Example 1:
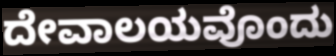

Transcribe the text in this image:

ದೇವಾಲಯವೊಂದು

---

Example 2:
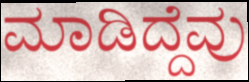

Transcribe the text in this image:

ಮಾಡಿದ್ದೆವು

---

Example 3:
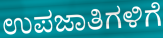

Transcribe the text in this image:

ಉಪಜಾತಿಗಳಿಗೆ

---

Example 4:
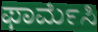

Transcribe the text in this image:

ಫಾರ್ಮೆಸಿ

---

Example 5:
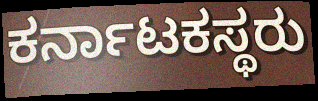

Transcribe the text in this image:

ಕರ್ನಾಟಕಸ್ಥರು